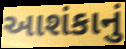
આશંકાનું